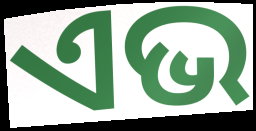
ଏଭ